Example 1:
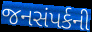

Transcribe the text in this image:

જનસંપર્કની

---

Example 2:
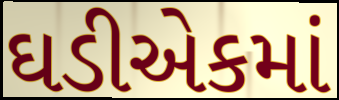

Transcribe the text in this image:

ઘડીએકમાં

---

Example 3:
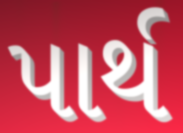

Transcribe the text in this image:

પાર્થ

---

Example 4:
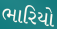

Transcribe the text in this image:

ભારિયો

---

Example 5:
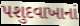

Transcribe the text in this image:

પશુદવાખાનાં